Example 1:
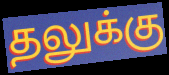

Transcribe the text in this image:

தலுக்கு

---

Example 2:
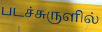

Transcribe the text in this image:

படச்சுருளில்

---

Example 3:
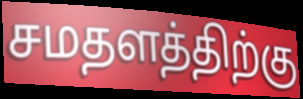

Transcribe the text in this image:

சமதளத்திற்கு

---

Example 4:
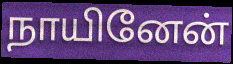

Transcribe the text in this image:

நாயினேன்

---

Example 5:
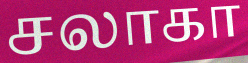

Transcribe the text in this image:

சலாகா